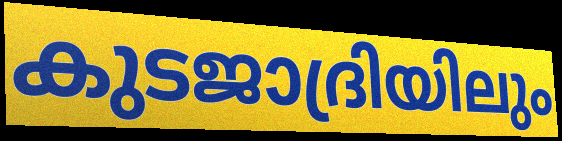
കുടജാദ്രിയിലും